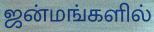
ஜன்மங்களில்